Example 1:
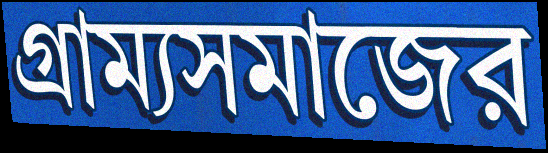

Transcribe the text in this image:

গ্রাম্যসমাজের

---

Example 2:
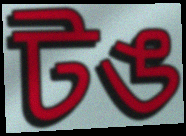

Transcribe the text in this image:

টঙ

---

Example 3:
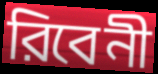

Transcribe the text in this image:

রিবেনী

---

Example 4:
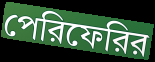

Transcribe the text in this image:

পেরিফেরির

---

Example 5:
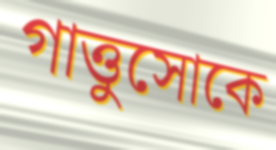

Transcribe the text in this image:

গাত্তুসোকে